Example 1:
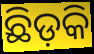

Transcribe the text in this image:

ଛିଡ଼କି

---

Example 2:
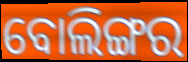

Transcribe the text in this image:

ବୋଲିଙ୍ଗର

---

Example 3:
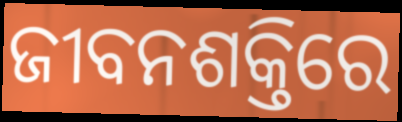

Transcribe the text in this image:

ଜୀବନଶକ୍ତିରେ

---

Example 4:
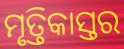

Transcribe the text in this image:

ମୃତ୍ତିକାସ୍ତର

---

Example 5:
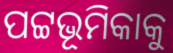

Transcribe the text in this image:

ପଟ୍ଟଭୂମିକାକୁ